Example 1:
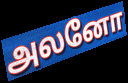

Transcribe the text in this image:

அலனோ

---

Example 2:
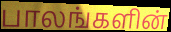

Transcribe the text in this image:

பாலங்களின்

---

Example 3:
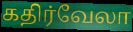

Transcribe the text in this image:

கதிர்வேலா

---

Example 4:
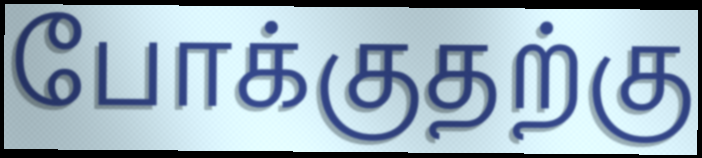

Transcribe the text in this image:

போக்குதற்கு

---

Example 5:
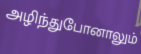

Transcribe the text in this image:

அழிந்துபோனாலும்